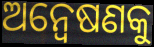
ଅନ୍ବେଷଣକୁ